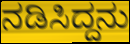
ನಡಿಸಿದ್ದನು